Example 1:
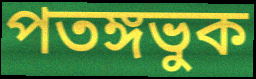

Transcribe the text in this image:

পতঙ্গভুক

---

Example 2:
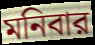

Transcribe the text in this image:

মনিবার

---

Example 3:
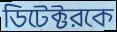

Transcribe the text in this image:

ডিটেক্টরকে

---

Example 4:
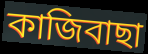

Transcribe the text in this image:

কাজিবাছা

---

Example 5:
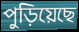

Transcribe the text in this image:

পুড়িয়েছে